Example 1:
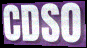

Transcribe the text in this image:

CDSO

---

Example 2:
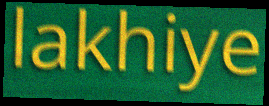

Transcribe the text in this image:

lakhiye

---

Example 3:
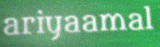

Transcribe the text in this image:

ariyaamal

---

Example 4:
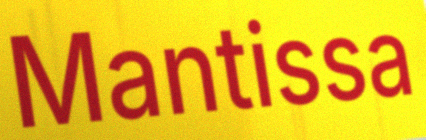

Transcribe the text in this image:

Mantissa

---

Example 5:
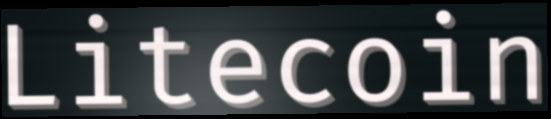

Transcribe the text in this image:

Litecoin